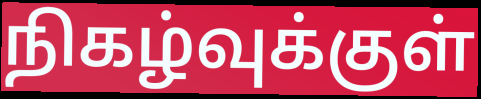
நிகழ்வுக்குள்